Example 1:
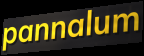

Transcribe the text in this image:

pannalum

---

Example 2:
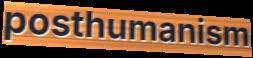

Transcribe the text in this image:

posthumanism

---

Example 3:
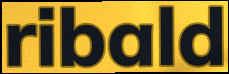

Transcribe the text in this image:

ribald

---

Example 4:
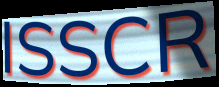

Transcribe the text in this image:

ISSCR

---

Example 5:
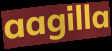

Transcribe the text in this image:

aagilla